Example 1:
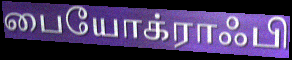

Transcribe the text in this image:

பையோக்ராஃபி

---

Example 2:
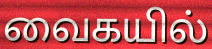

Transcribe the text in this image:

வைகயில்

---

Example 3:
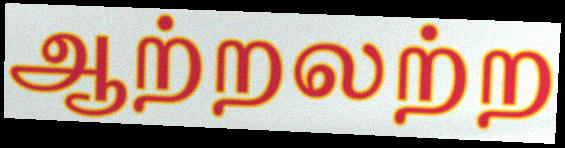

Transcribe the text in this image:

ஆற்றலற்ற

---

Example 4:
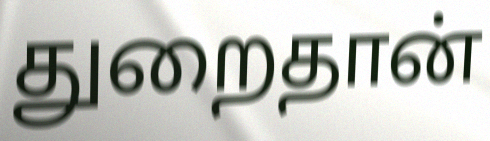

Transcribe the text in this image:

துறைதான்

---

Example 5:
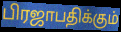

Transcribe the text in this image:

பிரஜாபதிக்கும்